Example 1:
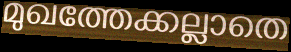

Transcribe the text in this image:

മുഖത്തേക്കല്ലാതെ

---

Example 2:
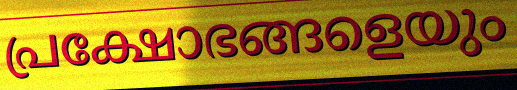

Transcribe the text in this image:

പ്രക്ഷോഭങ്ങളെയും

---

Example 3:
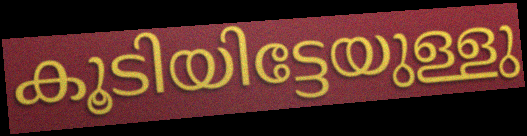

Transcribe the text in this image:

കൂടിയിട്ടേയുള്ളു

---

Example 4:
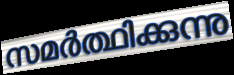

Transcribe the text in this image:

സമർത്ഥിക്കുന്നു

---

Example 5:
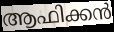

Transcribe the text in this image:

ആഫിക്കൻ